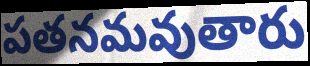
పతనమవుతారు